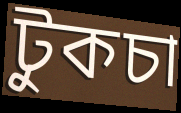
টুকচা